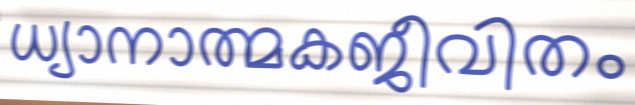
ധ്യാനാത്മകജീവിതം